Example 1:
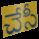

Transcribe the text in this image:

చేసీ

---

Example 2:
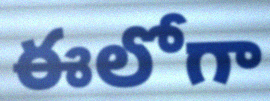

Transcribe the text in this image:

ఈలోగా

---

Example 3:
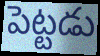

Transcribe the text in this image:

పెట్టడు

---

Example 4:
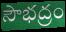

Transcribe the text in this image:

సౌభద్రం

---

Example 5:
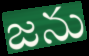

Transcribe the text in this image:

జను